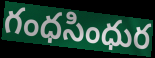
గంధసింధుర